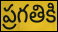
ప్రగతికి